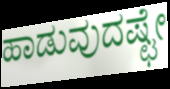
ಹಾಡುವುದಷ್ಟೇ